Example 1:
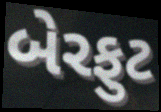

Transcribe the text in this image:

બેરફુટ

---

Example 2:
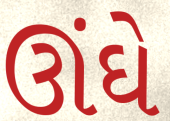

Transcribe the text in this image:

ઊંઘે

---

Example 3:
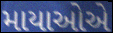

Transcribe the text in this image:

માયાઓએ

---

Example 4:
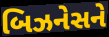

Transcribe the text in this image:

બિઝનેસને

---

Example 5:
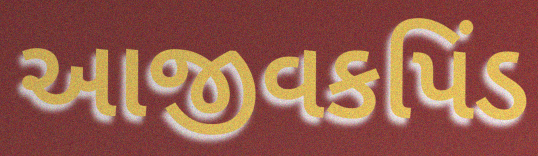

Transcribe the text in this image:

આજીવકપિંડ